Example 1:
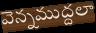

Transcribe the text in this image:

వెన్నముద్దలా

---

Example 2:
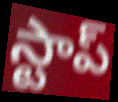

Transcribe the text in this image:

స్టాప్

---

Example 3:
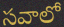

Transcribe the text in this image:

సవాలో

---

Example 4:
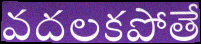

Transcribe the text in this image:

వదలకపోతే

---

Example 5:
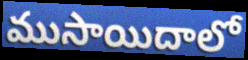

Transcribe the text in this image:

ముసాయిదాలో